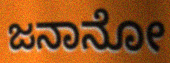
ಜನಾನೋ